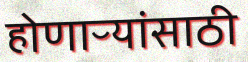
होणाऱ्यांसाठी